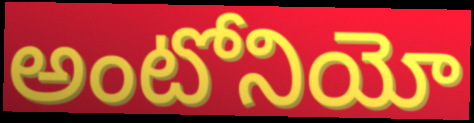
అంటోనియో